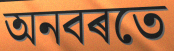
অনবৰতে